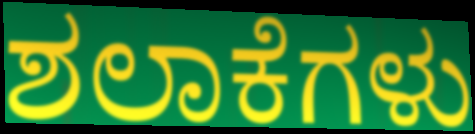
ಶಲಾಕೆಗಳು